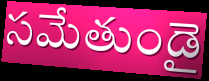
సమేతుండై